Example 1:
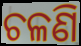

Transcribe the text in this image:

ଚଳଣି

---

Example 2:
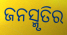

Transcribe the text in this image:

ଜନସ୍ମୃତିର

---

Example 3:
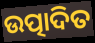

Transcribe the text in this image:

ଉତ୍ପାଦିତ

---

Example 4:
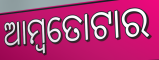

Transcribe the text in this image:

ଆମ୍ବତୋଟାର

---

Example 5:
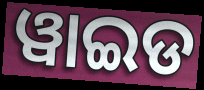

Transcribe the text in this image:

ୱାଇଡ